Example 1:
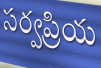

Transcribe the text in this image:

సర్వప్రియ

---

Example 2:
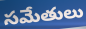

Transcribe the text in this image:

సమేతులు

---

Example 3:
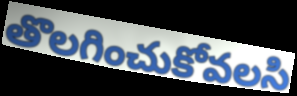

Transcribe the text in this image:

తొలగించుకోవలసి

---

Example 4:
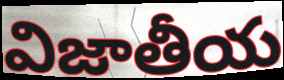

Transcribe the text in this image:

విజాతీయ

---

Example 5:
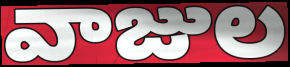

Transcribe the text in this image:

వాజుల